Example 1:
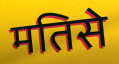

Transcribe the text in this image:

मतिसे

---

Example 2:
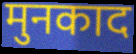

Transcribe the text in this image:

मुनकाद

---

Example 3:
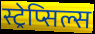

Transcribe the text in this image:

स्ट्रेप्सिल्स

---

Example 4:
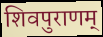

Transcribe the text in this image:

शिवपुराणम्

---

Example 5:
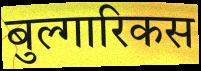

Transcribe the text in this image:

बुल्गारिकस